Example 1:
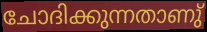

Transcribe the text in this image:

ചോദിക്കുന്നതാണു്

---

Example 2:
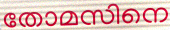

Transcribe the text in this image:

തോമസിനെ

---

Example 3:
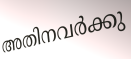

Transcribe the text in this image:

അതിനവർക്കു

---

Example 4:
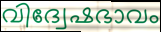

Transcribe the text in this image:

വിദ്വേഷഭാവം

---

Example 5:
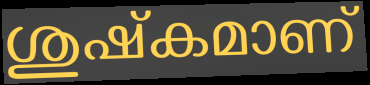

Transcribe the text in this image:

ശുഷ്‌കമാണ്